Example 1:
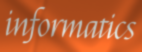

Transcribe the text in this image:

informatics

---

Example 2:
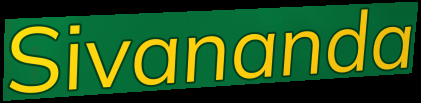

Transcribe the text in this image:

Sivananda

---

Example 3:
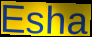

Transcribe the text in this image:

Esha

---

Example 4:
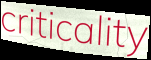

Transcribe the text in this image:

criticality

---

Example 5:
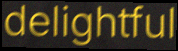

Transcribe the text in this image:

delightful